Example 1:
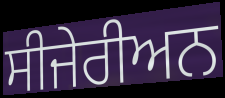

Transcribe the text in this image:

ਸੀਜੇਰੀਅਨ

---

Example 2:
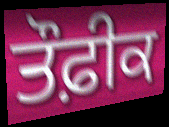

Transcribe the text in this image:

ਤੌਫ਼ੀਕ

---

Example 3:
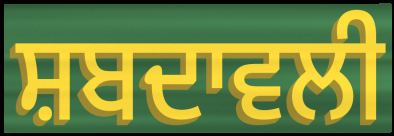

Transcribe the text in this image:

ਸ਼ਬਦਾਵਲੀ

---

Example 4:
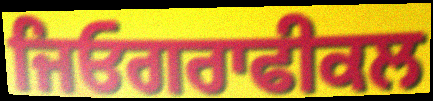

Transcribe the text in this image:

ਜਿਓਗਰਾਫੀਕਲ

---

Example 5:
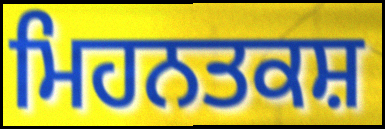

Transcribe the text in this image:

ਮਿਹਨਤਕਸ਼